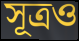
সূত্ৰও